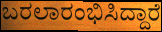
ಬರಲಾರಂಭಿಸಿದ್ದಾರೆ